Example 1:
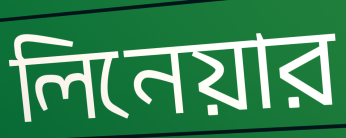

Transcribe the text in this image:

লিনেয়ার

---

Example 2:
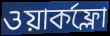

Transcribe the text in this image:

ওয়ার্কফ্লো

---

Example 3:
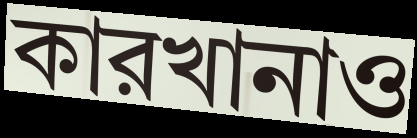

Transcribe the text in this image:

কারখানাও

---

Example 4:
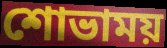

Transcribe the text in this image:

শোভাময়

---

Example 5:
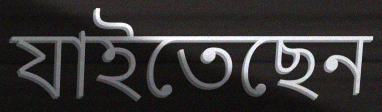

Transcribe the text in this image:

যাইতেছেন